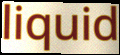
liquid